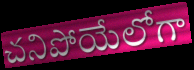
చనిపోయేలోగా